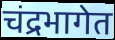
चंद्रभागेत